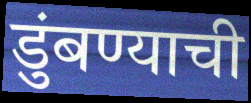
डुंबण्याची